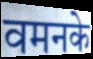
वमनके